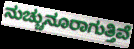
ನುಚ್ಚುನೂರಾಗುತ್ತಿವೆ